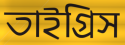
তাইগ্রিস